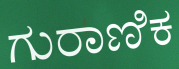
ಗುರಾಣಿಕ